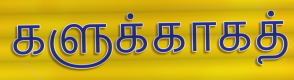
களுக்காகத்